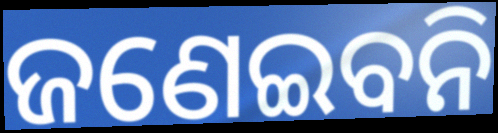
ଜଣେଇବନି